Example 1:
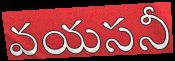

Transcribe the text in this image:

వయసనీ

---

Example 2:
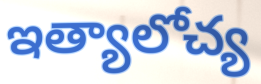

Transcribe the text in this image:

ఇత్యాలోచ్య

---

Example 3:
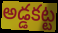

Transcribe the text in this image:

అడ్డకట్ట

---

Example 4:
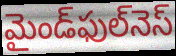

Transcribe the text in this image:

మైండ్‌ఫుల్‌నెస్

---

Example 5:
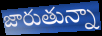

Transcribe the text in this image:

జారుతున్నా